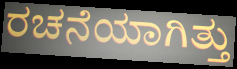
ರಚನೆಯಾಗಿತ್ತು